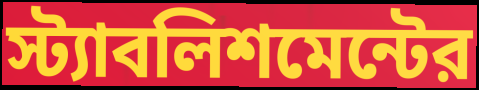
স্ট্যাবলিশমেন্টের